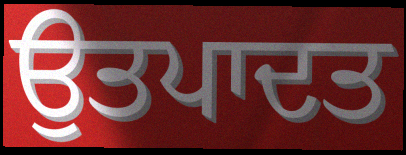
ਉਤਪਾਦਤ